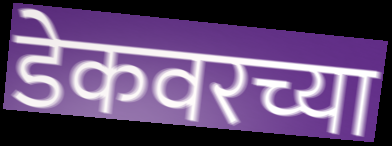
डेकवरच्या